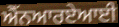
ਐੱਨਆਰਏਆਈ